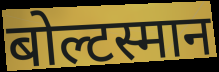
बोल्टस्मान